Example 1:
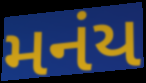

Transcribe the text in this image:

મનંય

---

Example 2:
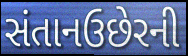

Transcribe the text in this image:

સંતાનઉછેરની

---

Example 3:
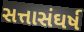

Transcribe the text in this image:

સત્તાસંઘર્ષ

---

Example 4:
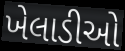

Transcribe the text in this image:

ખેલાડીઓ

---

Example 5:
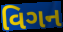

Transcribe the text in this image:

વિગન